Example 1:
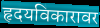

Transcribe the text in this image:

हृदयविकारावर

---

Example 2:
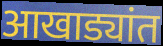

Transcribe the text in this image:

आखाड्यांत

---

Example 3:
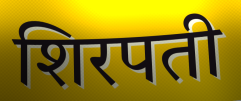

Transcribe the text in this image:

शिरपती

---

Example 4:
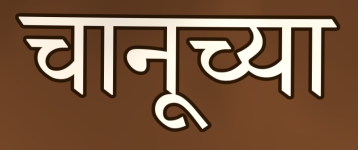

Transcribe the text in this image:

चानूच्या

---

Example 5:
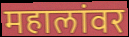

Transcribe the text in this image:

महालांवर